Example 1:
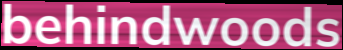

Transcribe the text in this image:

behindwoods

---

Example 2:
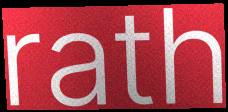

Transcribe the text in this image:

rath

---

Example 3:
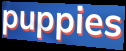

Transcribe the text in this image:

puppies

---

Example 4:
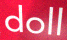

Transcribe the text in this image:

doll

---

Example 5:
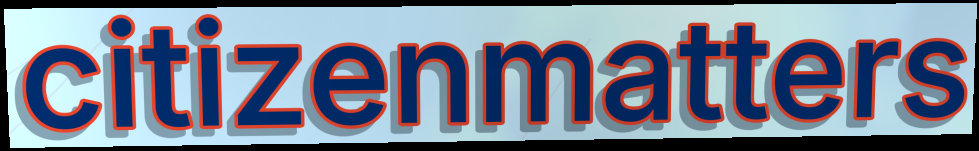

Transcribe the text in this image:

citizenmatters